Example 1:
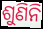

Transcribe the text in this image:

ଶୁଣିନି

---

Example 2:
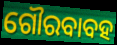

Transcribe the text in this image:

ଗୌରବାବହ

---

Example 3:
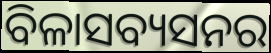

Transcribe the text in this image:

ବିଳାସବ୍ୟସନର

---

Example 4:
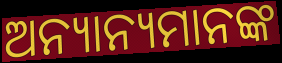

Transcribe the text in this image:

ଅନ୍ୟାନ୍ୟମାନଙ୍କ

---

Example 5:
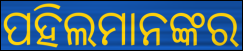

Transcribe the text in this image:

ପହିଲମାନଙ୍କର